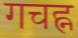
गचह्न